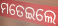
ମତେଇଲେ